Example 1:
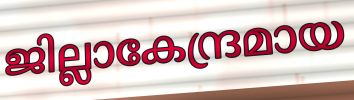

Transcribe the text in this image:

ജില്ലാകേന്ദ്രമായ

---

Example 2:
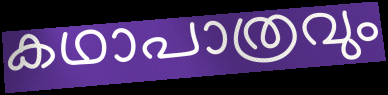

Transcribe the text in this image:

കഥാപാത്രവും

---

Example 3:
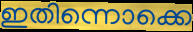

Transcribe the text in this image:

ഇതിന്നൊക്കെ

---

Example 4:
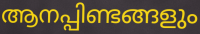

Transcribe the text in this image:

ആനപ്പിണ്ടങ്ങളും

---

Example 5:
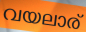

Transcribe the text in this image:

വയലാര്